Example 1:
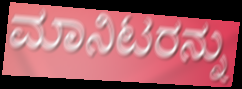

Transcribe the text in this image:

ಮಾನಿಟರನ್ನು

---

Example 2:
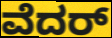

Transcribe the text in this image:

ವೆದರ್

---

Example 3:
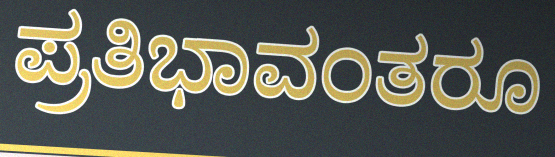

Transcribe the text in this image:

ಪ್ರತಿಭಾವಂತರೂ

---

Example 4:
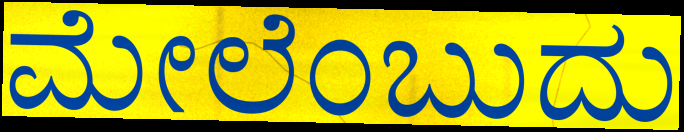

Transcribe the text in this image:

ಮೇಲೆಂಬುದು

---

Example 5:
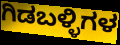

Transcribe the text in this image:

ಗಿಡಬಳ್ಳಿಗಳ